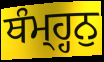
ਥੰਮ੍ਹ੍ਹਨੁ